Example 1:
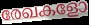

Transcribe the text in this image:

രേഖകളോ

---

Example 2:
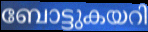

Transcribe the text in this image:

ബോട്ടുകയറി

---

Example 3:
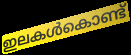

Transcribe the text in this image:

ഇലകൾകൊണ്ട്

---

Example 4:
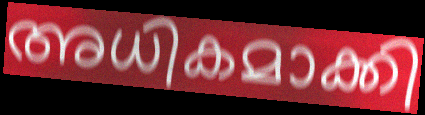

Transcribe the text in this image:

അധികമാക്കി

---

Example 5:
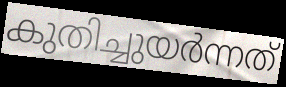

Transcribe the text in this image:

കുതിച്ചുയർന്നത്